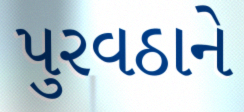
પુરવઠાને